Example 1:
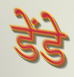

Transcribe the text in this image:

डेंडे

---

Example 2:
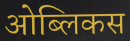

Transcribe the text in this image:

ओब्लिकस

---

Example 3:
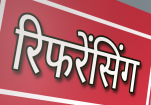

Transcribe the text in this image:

रिफरेंसिंग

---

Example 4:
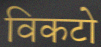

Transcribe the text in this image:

विकटो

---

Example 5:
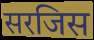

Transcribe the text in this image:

सरजिस